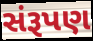
સંરૂપણ